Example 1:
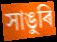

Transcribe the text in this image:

সাঙুৰি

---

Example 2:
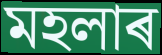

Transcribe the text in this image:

মহলাৰ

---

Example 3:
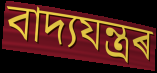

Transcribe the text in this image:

বাদ্যযন্ত্ৰৰ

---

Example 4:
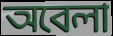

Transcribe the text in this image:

অবেলা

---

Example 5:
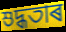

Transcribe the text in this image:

শুদ্ধতাৰ